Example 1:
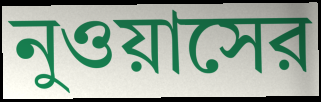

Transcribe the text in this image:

নুওয়াসের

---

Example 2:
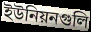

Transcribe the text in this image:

ইউনিয়নগুলি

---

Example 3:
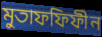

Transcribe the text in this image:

মুতাফফিফীন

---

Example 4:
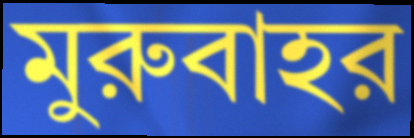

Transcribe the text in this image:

মুরুবাহর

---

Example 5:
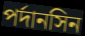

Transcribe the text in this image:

পর্দানসিন